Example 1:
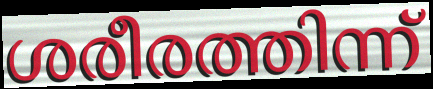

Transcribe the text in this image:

ശരീരത്തിന്ന്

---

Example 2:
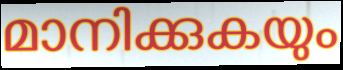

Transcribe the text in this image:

മാനിക്കുകയും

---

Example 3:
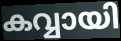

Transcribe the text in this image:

കവ്വായി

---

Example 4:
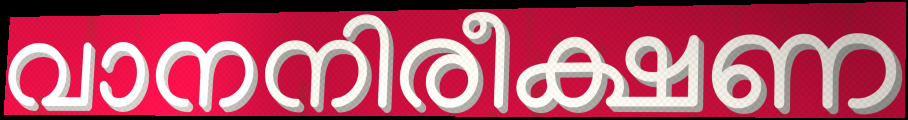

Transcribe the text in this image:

വാനനിരീക്ഷണ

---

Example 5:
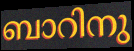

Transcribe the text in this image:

ബാറിനു